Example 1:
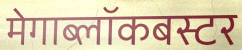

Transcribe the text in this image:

मेगाब्लॉकबस्टर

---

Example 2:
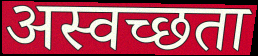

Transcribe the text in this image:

अस्वच्छता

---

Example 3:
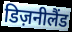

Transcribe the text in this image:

डिज़नीलैंड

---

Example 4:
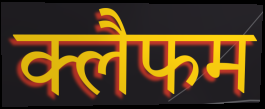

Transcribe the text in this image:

क्लैफम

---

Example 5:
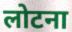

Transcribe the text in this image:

लोटना